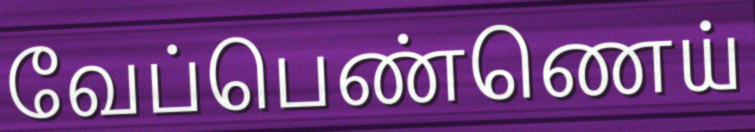
வேப்பெண்ணெய்